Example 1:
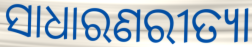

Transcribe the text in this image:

ସାଧାରଣରୀତ୍ୟା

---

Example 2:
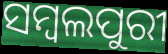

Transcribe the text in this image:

ସମ୍ବଲପୁରୀ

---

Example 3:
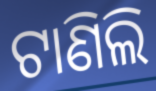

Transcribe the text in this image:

ଟାଣିଲି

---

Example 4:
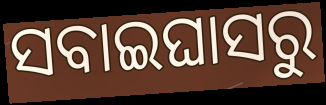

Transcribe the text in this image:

ସବାଇଘାସରୁ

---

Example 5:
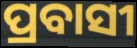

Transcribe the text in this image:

ପ୍ରବାସୀ